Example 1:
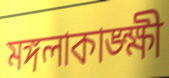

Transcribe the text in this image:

মঙ্গলাকাঙ্ক্ষী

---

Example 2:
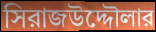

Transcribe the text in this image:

সিরাজউদ্দৌলার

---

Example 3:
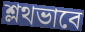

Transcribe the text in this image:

শ্লথভাবে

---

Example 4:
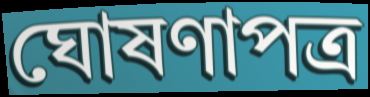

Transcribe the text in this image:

ঘোষণাপত্র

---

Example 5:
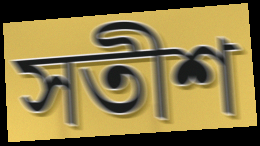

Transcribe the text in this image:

সতীশ